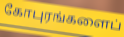
கோபுரங்களைப்